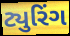
ટ્યુરિંગ